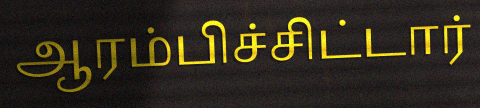
ஆரம்பிச்சிட்டார்